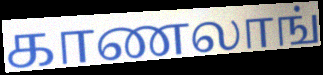
காணலாங்